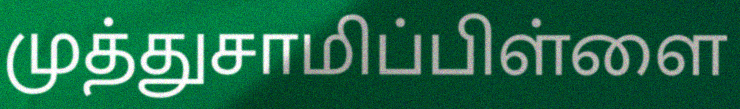
முத்துசாமிப்பிள்ளை